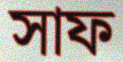
সাফ